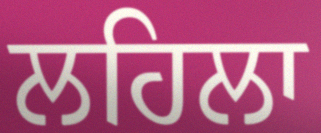
ਲਹਿਲਾ